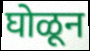
घोळून